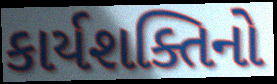
કાર્યશક્તિનો